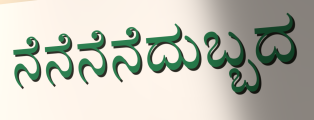
ನೆನೆನೆನೆದುಬ್ಬದ